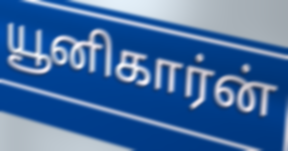
யூனிகார்ன்